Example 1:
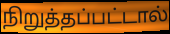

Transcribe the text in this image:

நிறுத்தப்பட்டால்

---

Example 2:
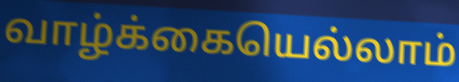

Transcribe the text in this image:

வாழ்க்கையெல்லாம்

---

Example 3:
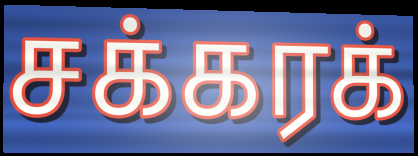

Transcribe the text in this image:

சக்கரக்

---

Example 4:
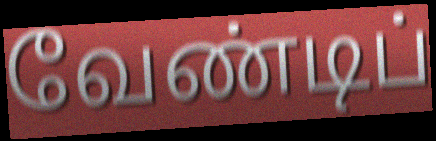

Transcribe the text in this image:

வேண்டிப்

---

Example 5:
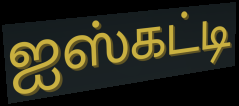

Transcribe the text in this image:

ஐஸ்கட்டி